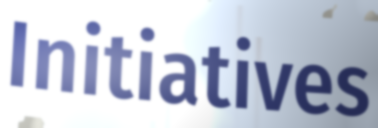
Initiatives